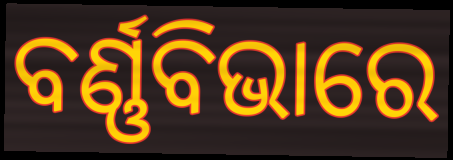
ବର୍ଣ୍ଣବିଭାରେ